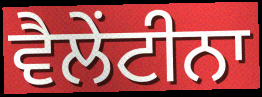
ਵੈਲੇਂਟੀਨਾ